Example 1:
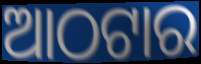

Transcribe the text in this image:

ଆଠଟାର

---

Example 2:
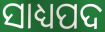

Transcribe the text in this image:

ସାଧ୍ଯପଦ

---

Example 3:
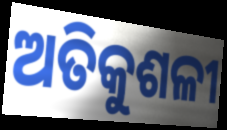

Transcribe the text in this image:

ଅତିକୁଶଳୀ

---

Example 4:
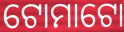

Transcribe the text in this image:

ଟୋମାଟୋ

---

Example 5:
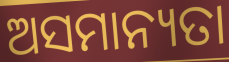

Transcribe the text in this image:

ଅସମାନ୍ୟତା